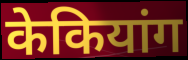
केकियांग